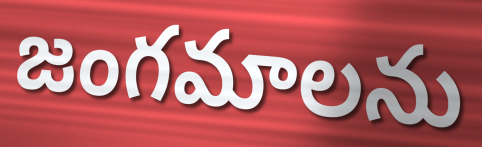
జంగమాలను